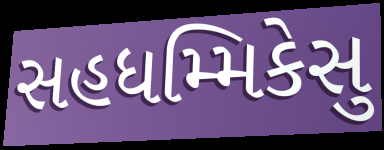
સહધમ્મિકેસુ